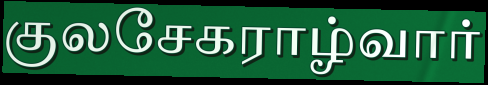
குலசேகராழ்வார்